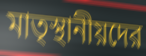
মাতৃস্থানীয়দের